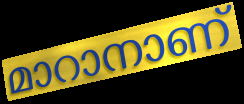
മാറാനാണ്